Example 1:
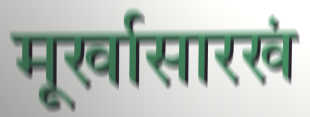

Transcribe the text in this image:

मूर्खासारखं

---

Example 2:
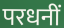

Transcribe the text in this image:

परधनीं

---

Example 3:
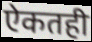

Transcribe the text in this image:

ऐकतही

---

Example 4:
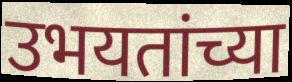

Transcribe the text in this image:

उभयतांच्या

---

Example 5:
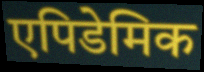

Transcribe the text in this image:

एपिडेमिक